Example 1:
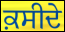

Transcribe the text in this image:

ਕ਼ਸੀਦੇ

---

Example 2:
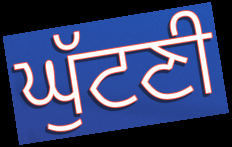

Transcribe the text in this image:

ਘੁੱਟਣੀ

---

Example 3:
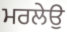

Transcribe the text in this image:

ਮਰਲੇਉ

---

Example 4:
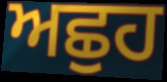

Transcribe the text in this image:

ਅਛੁਹ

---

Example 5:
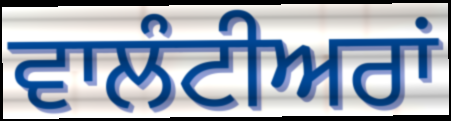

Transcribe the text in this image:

ਵਾਲੰਟੀਅਰਾਂ